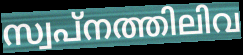
സ്വപ്നത്തിലിവ